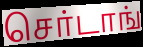
செர்டாங்